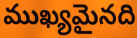
ముఖ్యమైనది